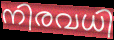
നിരവധി